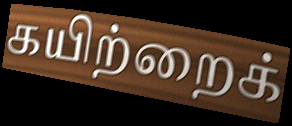
கயிற்றைக்